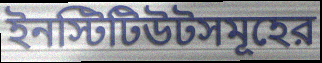
ইনস্টিটিউটসমূহের